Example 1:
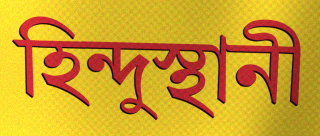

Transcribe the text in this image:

হিন্দুস্থানী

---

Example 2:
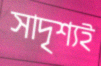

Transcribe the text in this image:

সাদৃশ্যই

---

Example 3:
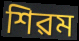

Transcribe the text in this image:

শিৱম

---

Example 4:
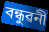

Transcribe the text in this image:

বন্ধুৱনী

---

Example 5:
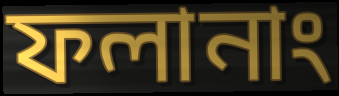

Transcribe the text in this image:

ফলানাং